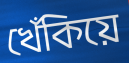
খেঁকিয়ে